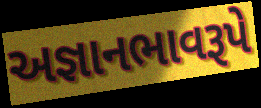
અજ્ઞાનભાવરૂપે